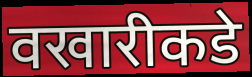
वखारीकडे